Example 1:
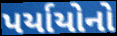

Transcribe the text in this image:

પર્યાયોનો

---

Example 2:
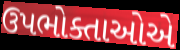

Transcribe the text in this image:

ઉપભોક્તાઓએ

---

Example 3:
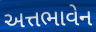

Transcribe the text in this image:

અત્તભાવેન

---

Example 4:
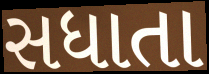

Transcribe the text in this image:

સધાતા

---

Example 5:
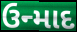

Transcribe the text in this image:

ઉન્માદ